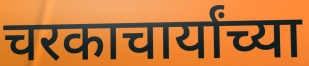
चरकाचार्यांच्या